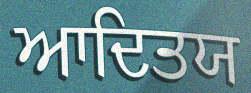
ਆਦਿਤਯ